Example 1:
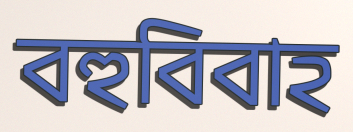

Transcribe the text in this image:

বহুবিবাহ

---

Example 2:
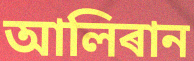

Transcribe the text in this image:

আলিৰান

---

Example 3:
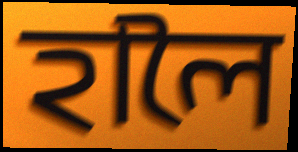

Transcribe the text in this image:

হালৈ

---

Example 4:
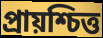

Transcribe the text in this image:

প্ৰায়শ্চিত্ত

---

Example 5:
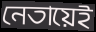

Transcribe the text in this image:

নেতায়েই